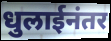
धुलाईनंतर